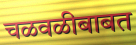
चळवळीबाबत